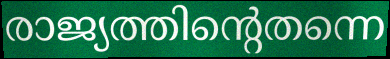
രാജ്യത്തിന്റെതന്നെ